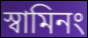
স্বামিনং